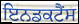
ਇਨਡਕਟੈਂਸ